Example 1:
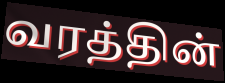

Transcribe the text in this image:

வரத்தின்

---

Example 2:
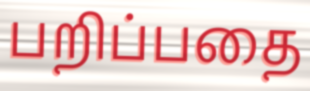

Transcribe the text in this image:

பறிப்பதை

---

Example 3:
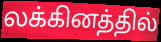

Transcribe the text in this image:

லக்கினத்தில்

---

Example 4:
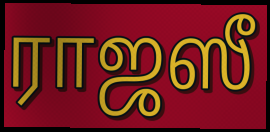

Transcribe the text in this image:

ராஜஸீ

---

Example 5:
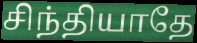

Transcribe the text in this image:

சிந்தியாதே